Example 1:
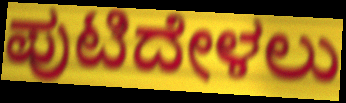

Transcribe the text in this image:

ಪುಟಿದೇಳಲು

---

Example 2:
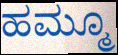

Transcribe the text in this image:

ಹಮ್ಮೂ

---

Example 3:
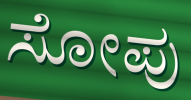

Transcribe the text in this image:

ಸೋಪು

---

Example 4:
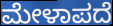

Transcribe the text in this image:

ಮೇಳಾಪದೆ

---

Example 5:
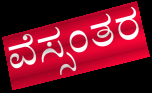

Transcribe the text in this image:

ವೆಸ್ಸಂತರ